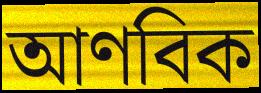
আণবিক